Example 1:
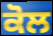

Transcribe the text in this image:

ਕੋਲ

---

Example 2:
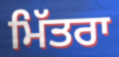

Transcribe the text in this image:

ਮਿੱਤਰਾ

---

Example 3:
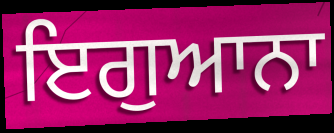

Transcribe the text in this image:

ਇਗੁਆਨਾ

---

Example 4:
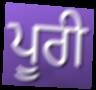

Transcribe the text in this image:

ਪੂਰੀ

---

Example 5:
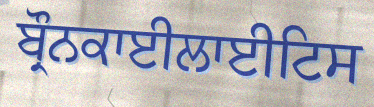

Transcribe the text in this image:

ਬ੍ਰੌਨਕਾਈਲਾਈਟਿਸ